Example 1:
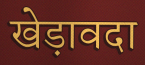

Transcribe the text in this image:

खेड़ावदा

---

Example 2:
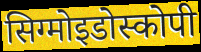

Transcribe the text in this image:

सिग्मोइडोस्कोपी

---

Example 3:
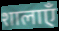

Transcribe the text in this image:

शालाएँ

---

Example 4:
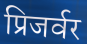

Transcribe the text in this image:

प्रिजर्वर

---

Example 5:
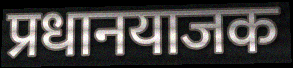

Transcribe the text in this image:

प्रधानयाजक